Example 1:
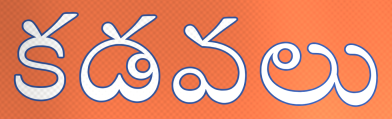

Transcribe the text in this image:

కడవలు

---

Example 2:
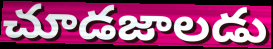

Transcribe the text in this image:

చూడజాలడు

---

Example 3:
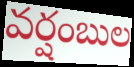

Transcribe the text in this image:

వర్షంబుల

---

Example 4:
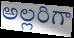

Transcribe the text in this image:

అల్లరిగా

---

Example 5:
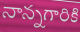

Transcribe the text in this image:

నాన్నగారికి